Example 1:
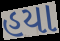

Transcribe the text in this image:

હયા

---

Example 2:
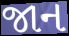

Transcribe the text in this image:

જાન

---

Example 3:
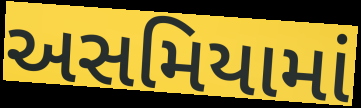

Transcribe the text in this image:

અસમિયામાં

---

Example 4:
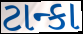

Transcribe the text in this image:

ટાન્કા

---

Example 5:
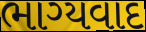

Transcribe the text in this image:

ભાગ્યવાદ